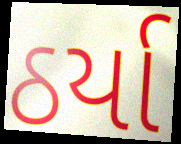
ઠર્યા